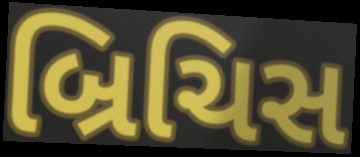
બ્રિચિસ